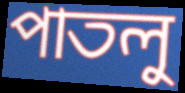
পাতলু